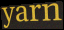
yarn